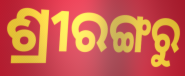
ଶ୍ରୀରଙ୍ଗରୁ